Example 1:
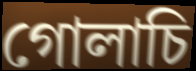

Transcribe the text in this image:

গোলাচি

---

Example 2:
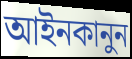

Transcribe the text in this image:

আইনকানুন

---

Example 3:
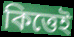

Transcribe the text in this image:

কিত্তেই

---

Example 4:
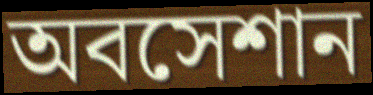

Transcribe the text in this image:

অবসেশান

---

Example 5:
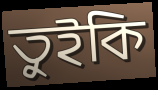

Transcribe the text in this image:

তুইকি